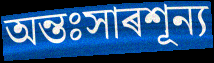
অন্তঃসাৰশূন্য